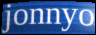
jonnyo